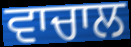
ਵਾਚਾਲ